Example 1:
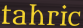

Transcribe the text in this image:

tahric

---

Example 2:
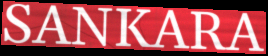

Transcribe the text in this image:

SANKARA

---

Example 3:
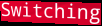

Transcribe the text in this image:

Switching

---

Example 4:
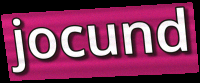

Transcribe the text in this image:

jocund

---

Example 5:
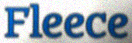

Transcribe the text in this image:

Fleece